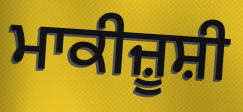
ਮਾਕੀਜ਼ੂਸ਼ੀ